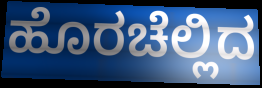
ಹೊರಚೆಲ್ಲಿದ